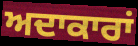
ਅਦਾਕਾਰਾਂ